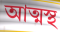
আত্মস্থ